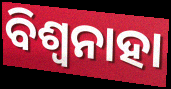
ବିଶ୍ଵନାହା